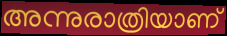
അന്നുരാത്രിയാണ്